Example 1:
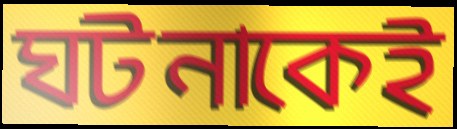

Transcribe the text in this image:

ঘটনাকেই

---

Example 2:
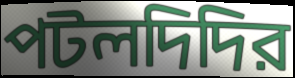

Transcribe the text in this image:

পটলদিদির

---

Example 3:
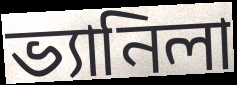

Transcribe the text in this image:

ভ্যানিলা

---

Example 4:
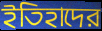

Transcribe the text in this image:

ইতিহাদের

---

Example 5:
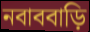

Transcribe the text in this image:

নবাববাড়ি